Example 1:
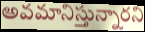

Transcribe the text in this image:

అవమానిస్తున్నారని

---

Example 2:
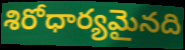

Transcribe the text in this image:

శిరోధార్యమైనది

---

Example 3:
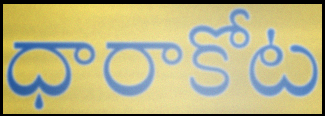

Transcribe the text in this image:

ధారాకోట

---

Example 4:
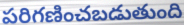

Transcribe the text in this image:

పరిగణించబడుతుంది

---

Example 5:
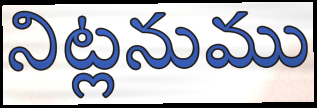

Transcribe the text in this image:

నిట్లనుము